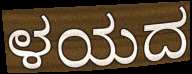
ಳಯದ